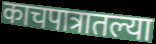
काचपात्रातल्या